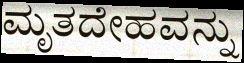
ಮೃತದೇಹವನ್ನು